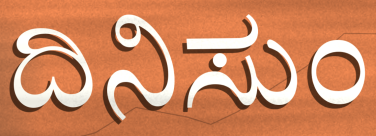
ದಿನಿಸುಂ